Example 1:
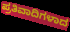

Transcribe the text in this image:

ಪ್ರತಿವಾದಿಗಳಾದ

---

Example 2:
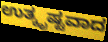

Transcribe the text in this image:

ಉತ್ಕೃಷ್ಟವಾದ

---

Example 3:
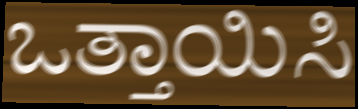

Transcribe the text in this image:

ಒತ್ತಾಯಿಸಿ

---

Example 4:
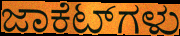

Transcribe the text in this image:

ಜಾಕೆಟ್‌ಗಳು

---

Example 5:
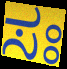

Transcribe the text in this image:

ಸಃ